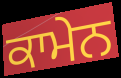
ਕਾਮੇਨ